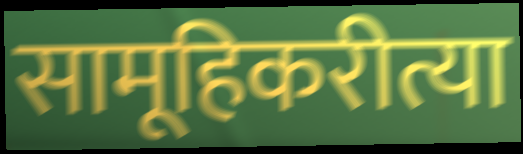
सामूहिकरीत्या